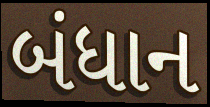
બંધાન